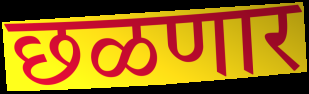
छळणार